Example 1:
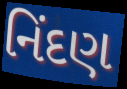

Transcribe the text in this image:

નિંદણ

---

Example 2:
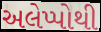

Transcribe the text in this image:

અલેપ્પોથી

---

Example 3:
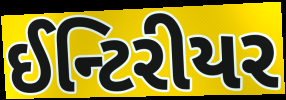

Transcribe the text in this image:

ઈન્ટિરીયર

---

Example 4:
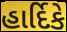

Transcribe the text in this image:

હાર્દિકે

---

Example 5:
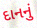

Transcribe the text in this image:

દાનનું